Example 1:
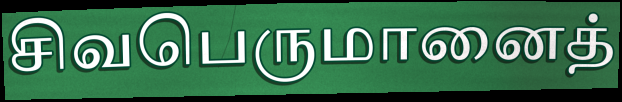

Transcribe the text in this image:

சிவபெருமானைத்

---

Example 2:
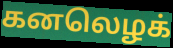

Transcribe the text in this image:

கனலெழக்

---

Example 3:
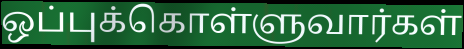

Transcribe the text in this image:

ஒப்புக்கொள்ளுவார்கள்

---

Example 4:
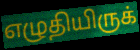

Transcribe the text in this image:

எழுதியிருக்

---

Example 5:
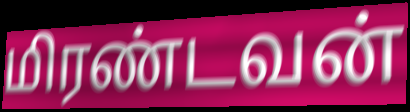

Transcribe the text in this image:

மிரண்டவன்